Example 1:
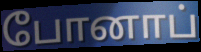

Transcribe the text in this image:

போனாப்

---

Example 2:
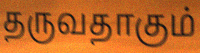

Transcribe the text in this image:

தருவதாகும்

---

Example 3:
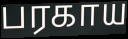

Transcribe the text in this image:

பரகாய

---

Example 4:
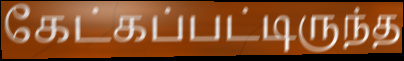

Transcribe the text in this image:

கேட்கப்பட்டிருந்த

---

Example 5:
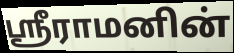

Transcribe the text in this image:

ஸ்ரீராமனின்